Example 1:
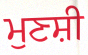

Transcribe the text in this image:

ਮੁਣਸ਼ੀ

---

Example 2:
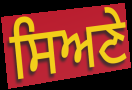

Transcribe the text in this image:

ਸਿਅਣੇ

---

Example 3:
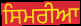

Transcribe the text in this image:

ਸਿਮਰੀਆ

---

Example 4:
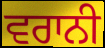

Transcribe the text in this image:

ਵਰਾਨੀ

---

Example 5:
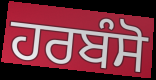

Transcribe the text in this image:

ਹਰਬੰਸੋ